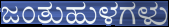
ಜಂತುಹುಳಗಳು